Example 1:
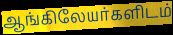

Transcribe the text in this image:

ஆங்கிலேயர்களிடம்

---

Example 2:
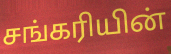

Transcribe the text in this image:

சங்கரியின்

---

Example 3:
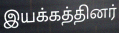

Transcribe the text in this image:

இயக்கத்தினர்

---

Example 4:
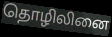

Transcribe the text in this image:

தொழிலினை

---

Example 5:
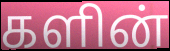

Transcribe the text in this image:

களின்